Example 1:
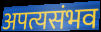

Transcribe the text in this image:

अपत्यसंभव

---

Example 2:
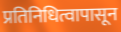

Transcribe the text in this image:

प्रतिनिधित्वापासून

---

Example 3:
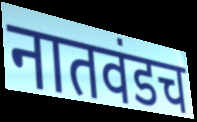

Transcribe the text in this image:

नातवंडच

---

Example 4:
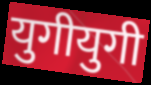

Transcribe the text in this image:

युगीयुगी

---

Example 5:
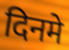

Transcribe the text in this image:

दिनमे